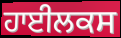
ਹਾਈਲਕਸ